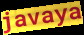
javaya